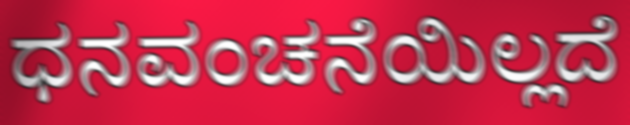
ಧನವಂಚನೆಯಿಲ್ಲದೆ